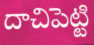
దాచిపెట్టి